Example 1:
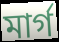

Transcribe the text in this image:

মার্গ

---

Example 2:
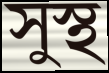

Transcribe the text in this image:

সুস্থ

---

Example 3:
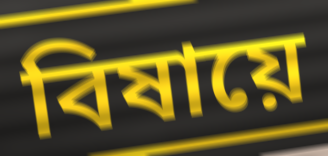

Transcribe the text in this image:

বিষায়ে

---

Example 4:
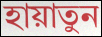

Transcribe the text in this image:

হায়াতুন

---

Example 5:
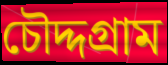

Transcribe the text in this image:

চৌদ্দগ্রাম